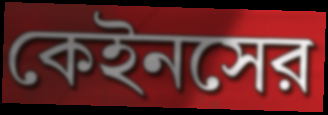
কেইনসের